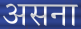
असना